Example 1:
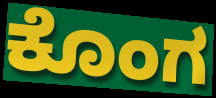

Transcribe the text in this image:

ಕೊಂಗ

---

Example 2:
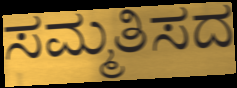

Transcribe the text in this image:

ಸಮ್ಮತಿಸದ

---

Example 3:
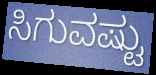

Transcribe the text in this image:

ಸಿಗುವಷ್ಟು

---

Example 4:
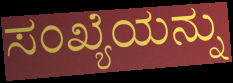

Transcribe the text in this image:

ಸಂಖ್ಯೆಯನ್ನು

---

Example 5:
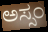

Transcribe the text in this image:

ಅಸ್ಸಂ